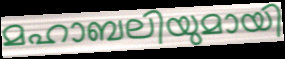
മഹാബലിയുമായി